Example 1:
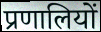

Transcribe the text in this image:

प्रणालियों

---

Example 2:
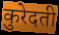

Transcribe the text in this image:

कुरेदती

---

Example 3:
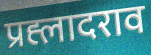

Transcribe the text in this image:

प्रह्लादराव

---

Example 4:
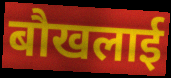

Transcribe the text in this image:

बौखलाई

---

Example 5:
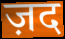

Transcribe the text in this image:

ज़द